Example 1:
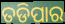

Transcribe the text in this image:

ତଡିପାର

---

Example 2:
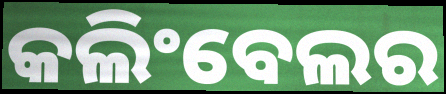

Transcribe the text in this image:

କଲିଂବେଲର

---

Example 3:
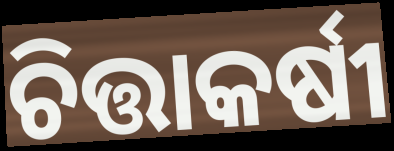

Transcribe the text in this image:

ଚିତ୍ତାକର୍ଷୀ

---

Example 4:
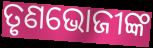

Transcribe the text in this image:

ତୃଣଭୋଜୀଙ୍କ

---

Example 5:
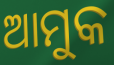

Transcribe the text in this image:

ଆମୁକ